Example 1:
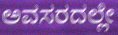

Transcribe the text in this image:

ಅವಸರದಲ್ಲೇ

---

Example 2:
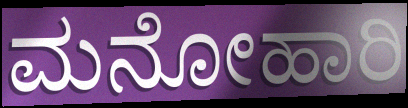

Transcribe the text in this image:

ಮನೋಹಾರಿ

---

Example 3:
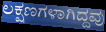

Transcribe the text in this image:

ಲಕ್ಷಣಗಳಾಗಿದ್ದವು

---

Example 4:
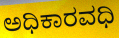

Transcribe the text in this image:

ಅಧಿಕಾರವಧಿ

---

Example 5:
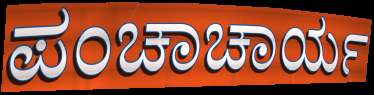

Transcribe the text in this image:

ಪಂಚಾಚಾರ್ಯ